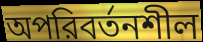
অপরিবর্তনশীল